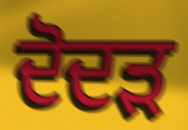
ਦੋਦੜ